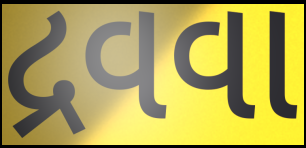
દ્રવવા